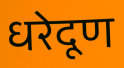
धरेदूण